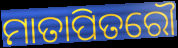
ମାତାପିତରୌ